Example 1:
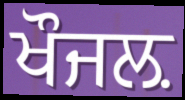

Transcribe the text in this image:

ਖੌਜਲ਼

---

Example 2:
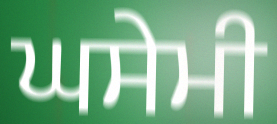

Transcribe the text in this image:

ਘਸੇਮੀ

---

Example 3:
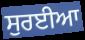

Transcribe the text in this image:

ਸੁਰਈਆ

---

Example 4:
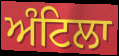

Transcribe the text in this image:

ਅੰਟਿਲਾ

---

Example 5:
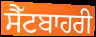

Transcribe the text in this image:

ਸੈੱਟਬਾਹਰੀ